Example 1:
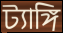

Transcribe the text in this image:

ট্যাঙ্গি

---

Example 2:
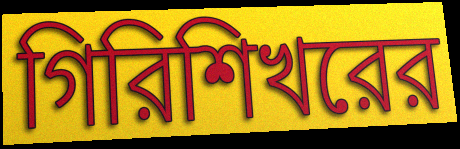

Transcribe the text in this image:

গিরিশিখরের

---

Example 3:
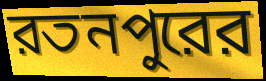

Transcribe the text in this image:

রতনপুরের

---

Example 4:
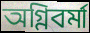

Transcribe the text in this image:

অগ্নিবর্মা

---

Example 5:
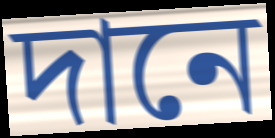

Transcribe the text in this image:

দানে